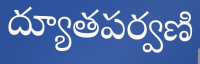
ద్యూతపర్వణి